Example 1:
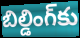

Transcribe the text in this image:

బిల్డింగ్‌కు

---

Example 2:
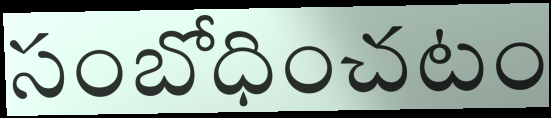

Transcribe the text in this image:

సంబోధించటం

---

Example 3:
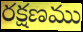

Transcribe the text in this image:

రక్షణము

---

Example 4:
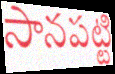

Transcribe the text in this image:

సానపట్టి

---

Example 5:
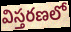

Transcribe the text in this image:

విస్తరణలో